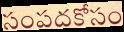
సంపదకోసం